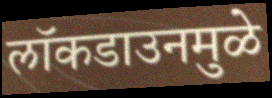
लॉकडाउनमुळे